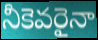
నీకెవరైనా